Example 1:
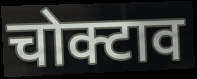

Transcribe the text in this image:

चोक्टाव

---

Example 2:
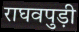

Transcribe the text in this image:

राघवपुड़ी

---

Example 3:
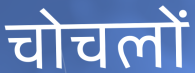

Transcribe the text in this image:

चोचलों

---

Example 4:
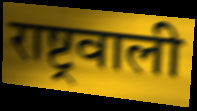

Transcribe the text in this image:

राष्ट्रवाली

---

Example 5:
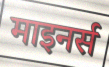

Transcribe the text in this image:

माइनर्स